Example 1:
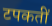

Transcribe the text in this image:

टपकतीं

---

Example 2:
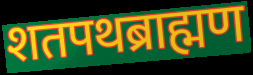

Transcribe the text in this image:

शतपथब्राह्मण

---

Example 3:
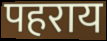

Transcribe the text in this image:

पहराय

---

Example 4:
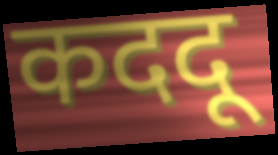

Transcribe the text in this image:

कददू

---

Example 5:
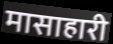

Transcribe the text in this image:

मासाहारी